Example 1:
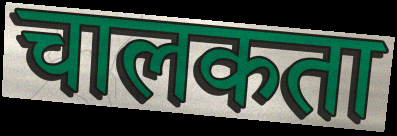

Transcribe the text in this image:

चालकता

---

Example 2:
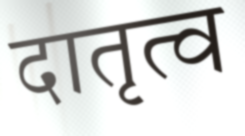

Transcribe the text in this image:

दातृत्व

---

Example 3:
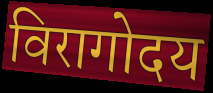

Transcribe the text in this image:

विरागोदय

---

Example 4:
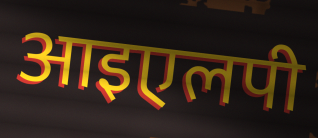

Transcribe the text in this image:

आइएलपी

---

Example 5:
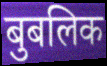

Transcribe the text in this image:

बुबलिक